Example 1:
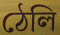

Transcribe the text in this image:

ঠেলি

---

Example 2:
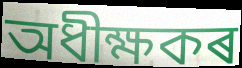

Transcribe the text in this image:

অধীক্ষকৰ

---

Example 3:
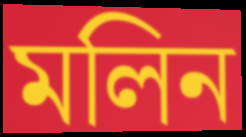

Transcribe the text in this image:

মলিন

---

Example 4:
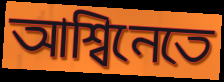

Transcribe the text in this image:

আশ্বিনেতে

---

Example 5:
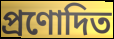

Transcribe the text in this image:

প্ৰণোদিত